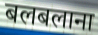
बलबलाना